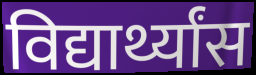
विद्यार्थ्यांस